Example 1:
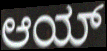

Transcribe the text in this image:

ಆಯ್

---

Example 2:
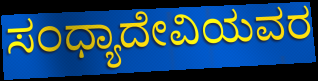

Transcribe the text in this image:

ಸಂಧ್ಯಾದೇವಿಯವರ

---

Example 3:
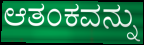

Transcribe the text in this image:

ಆತಂಕವನ್ನು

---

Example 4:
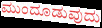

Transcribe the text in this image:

ಮುಂದೂಡುವುದು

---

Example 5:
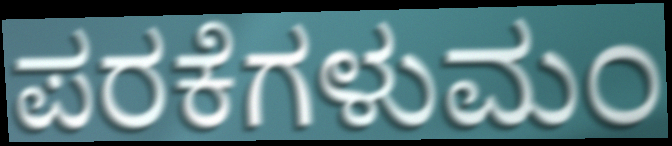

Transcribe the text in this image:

ಪರಕೆಗಳುಮಂ